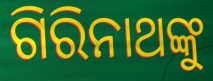
ଗିରିନାଥଙ୍କୁ